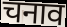
चनाव